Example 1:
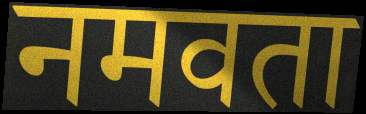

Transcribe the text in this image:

नमवता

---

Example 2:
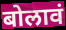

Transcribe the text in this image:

बोलावं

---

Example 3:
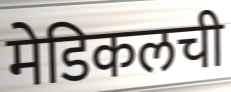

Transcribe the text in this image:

मेडिकलची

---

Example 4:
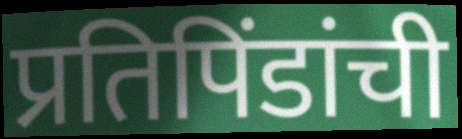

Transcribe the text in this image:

प्रतिपिंडांची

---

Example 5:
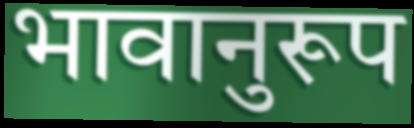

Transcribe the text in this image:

भावानुरूप